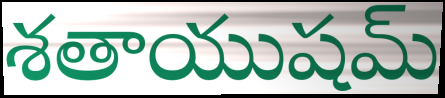
శతాయుషమ్